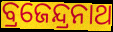
ବ୍ରଜେନ୍ଦ୍ରନାଥ